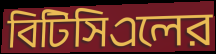
বিটিসিএলের